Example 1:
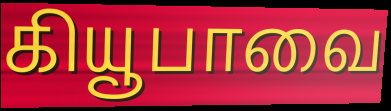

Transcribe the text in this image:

கியூபாவை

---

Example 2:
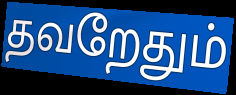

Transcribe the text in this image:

தவறேதும்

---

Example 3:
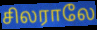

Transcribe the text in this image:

சிலராலே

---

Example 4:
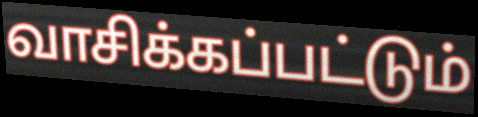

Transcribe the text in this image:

வாசிக்கப்பட்டும்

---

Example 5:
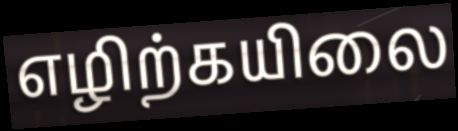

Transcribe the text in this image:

எழிற்கயிலை